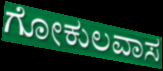
ಗೋಕುಲವಾಸ